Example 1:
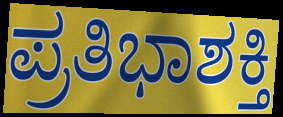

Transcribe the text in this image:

ಪ್ರತಿಭಾಶಕ್ತಿ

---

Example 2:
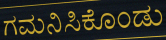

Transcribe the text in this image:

ಗಮನಿಸಿಕೊಂಡು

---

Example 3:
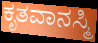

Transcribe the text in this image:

ಕೃತವಾನಸ್ಮಿ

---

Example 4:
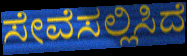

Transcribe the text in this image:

ಸೇವೆಸಲ್ಲಿಸಿದೆ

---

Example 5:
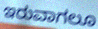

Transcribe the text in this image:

ಇರುವಾಗಲೂ